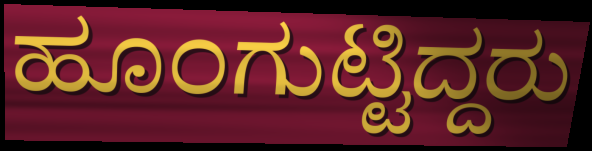
ಹೂಂಗುಟ್ಟಿದ್ದರು